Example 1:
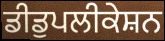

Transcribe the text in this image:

ਡੀਡੁਪਲੀਕੇਸ਼ਨ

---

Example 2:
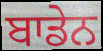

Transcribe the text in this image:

ਬਾਡੇਨ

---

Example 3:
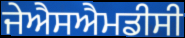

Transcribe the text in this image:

ਜੇਐਸਐਮਡੀਸੀ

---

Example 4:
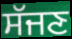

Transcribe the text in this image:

ਸੱਜਣ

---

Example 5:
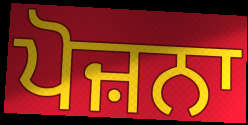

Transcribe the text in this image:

ਪੋਜ਼ਨਾ